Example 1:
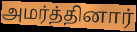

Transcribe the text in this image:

அமர்த்தினார்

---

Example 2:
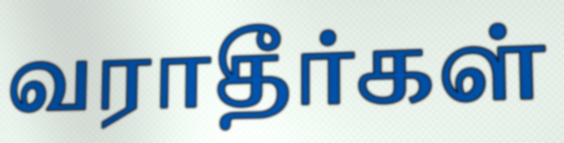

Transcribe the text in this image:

வராதீர்கள்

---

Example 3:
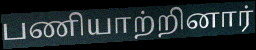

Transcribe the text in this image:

பணியாற்றினார்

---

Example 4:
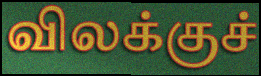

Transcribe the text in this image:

விலக்குச்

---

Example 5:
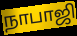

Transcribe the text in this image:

நாபாஜி